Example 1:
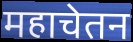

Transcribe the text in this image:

महाचेतन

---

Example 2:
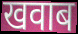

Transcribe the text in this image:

खवाब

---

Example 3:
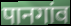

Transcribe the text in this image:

पानगांव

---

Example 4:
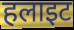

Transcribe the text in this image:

हलाइट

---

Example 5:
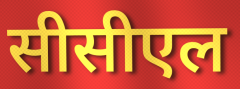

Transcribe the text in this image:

सीसीएल